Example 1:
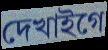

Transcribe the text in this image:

দেখাইগে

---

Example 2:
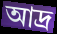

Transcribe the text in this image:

আদ্র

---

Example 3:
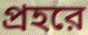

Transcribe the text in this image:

প্রহরে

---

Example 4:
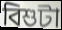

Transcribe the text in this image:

বিশুটা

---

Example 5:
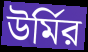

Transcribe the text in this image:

উর্মির